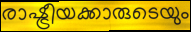
രാഷ്ട്രീയക്കാരുടെയും